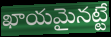
ఖాయమైనట్టే